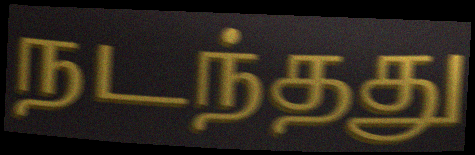
நடந்தது